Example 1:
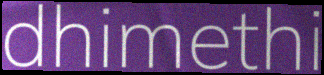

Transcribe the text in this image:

dhimethi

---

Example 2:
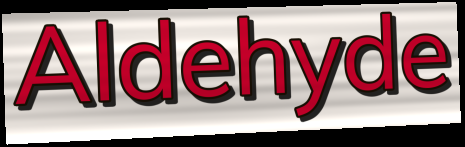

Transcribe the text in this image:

Aldehyde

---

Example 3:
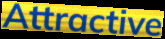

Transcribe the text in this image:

Attractive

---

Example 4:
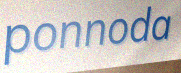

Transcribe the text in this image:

ponnoda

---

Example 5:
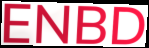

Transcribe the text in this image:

ENBD